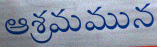
ఆశ్రమమున